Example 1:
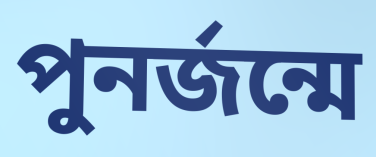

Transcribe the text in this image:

পুনর্জন্মে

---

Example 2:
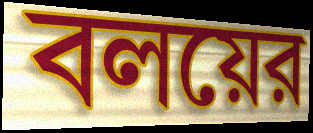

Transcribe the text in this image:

বলয়ের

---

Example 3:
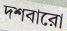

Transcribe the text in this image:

দশবারো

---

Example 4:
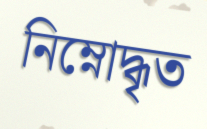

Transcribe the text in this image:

নিম্নোদ্ধৃত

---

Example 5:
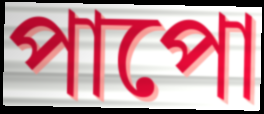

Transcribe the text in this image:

পাপো